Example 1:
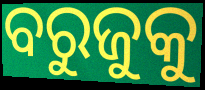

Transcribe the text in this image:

ବରୁଜୁକୁ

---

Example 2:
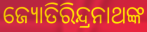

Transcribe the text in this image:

ଜ୍ୟୋତିରିନ୍ଦ୍ରନାଥଙ୍କ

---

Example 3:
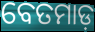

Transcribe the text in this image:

ବେତମାଡ଼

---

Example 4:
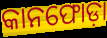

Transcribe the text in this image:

କାନଫୋଡ଼ା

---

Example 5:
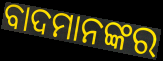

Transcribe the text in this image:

ବାଦମାନଙ୍କର